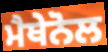
ਮੈਥੇਨੋਲ